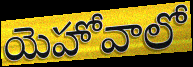
యెహోవాలో